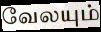
வேலயும்